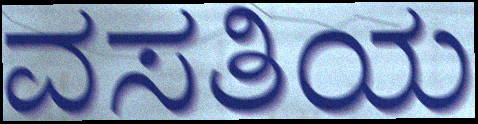
ವಸತಿಯ